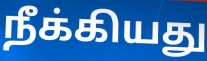
நீக்கியது